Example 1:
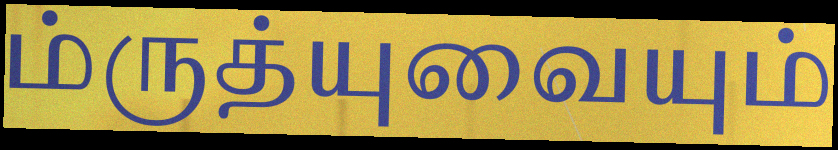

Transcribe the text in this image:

ம்ருத்யுவையும்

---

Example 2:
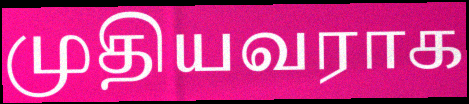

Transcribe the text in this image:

முதியவராக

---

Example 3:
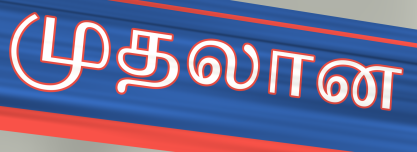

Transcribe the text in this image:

முதலான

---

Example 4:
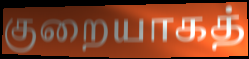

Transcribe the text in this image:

குறையாகத்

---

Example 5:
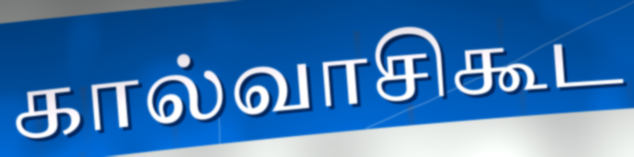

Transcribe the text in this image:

கால்வாசிகூட